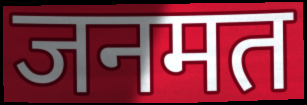
जनमत